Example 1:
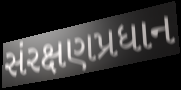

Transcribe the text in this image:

સંરક્ષણપ્રધાન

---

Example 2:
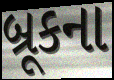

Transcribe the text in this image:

બ્રૂકના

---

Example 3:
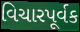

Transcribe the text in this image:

વિચારપૂર્વક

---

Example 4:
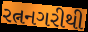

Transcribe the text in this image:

રત્નનગરીથી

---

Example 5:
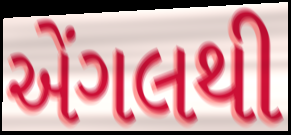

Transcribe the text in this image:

એંગલથી